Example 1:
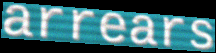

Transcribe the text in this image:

arrears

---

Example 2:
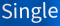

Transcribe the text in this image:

Single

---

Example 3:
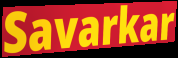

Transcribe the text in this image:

Savarkar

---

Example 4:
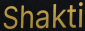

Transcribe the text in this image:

Shakti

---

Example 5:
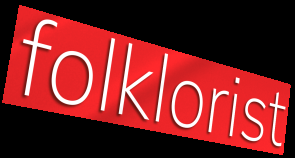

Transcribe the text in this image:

folklorist